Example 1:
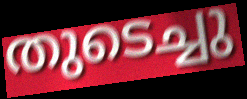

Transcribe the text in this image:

തുടെച്ചു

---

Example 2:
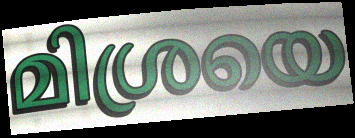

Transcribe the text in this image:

മിശ്രയെ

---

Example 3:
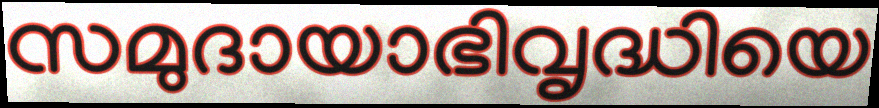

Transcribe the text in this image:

സമുദായാഭിവൃദ്ധിയെ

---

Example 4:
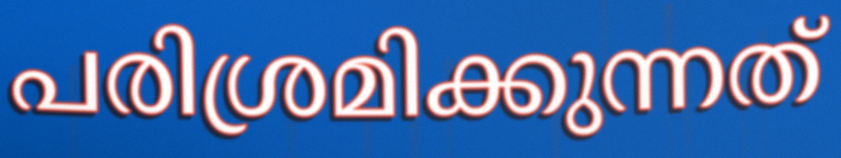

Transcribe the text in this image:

പരിശ്രമിക്കുന്നത്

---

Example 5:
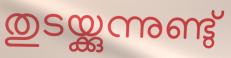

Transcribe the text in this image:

തുടയ്ക്കുന്നുണ്ടു്